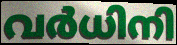
വർധിനി